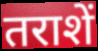
तराशें